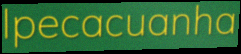
Ipecacuanha